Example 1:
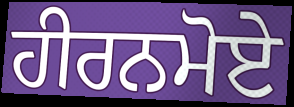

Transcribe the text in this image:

ਹੀਰਨਮੋਏ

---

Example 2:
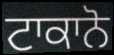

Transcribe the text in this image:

ਟਾਕਾਨੋ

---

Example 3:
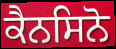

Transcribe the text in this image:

ਕੈਨਸਿਨੋ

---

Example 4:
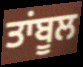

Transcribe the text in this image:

ਤਾਂਬੂਲ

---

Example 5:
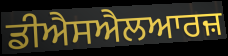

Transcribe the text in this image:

ਡੀਐਸਐਲਆਰਜ਼